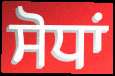
ਸੋਧਾਂ